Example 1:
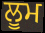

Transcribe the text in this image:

ਲੂਮ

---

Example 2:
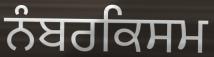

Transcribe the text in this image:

ਨੰਬਰਕਿਸਮ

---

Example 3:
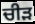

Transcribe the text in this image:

ਚੀੜ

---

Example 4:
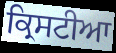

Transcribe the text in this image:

ਕ੍ਰਿਸਟੀਆ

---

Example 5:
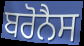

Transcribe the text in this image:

ਬਰੋਨੈਸ